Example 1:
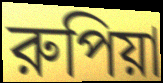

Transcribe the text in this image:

রুপিয়া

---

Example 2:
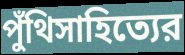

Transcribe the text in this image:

পুঁথিসাহিত্যের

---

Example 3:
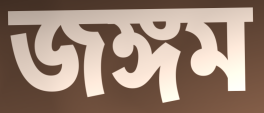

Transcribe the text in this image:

জঙ্গম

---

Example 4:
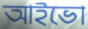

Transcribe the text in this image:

আইভো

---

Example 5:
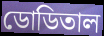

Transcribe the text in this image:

ডোডিতাল